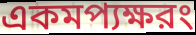
একমপ্যক্ষরং